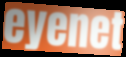
eyenet